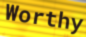
Worthy